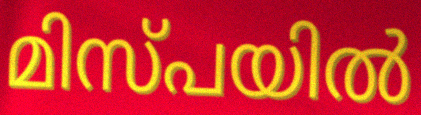
മിസ്പയിൽ